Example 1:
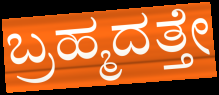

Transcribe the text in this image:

ಬ್ರಹ್ಮದತ್ತೇ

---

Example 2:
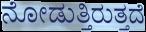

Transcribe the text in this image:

ನೋಡುತ್ತಿರುತ್ತದೆ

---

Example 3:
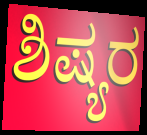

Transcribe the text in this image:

ಶಿಷ್ಯರ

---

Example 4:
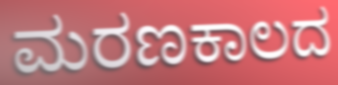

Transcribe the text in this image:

ಮರಣಕಾಲದ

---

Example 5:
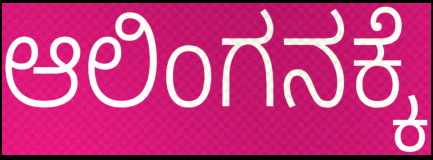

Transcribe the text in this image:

ಆಲಿಂಗನಕ್ಕೆ